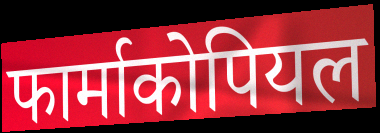
फार्माकोपियल